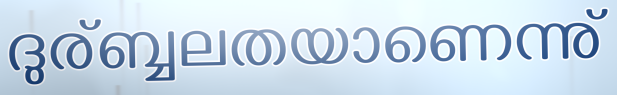
ദുര്ബ്ബലതയാണെന്നു്